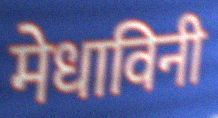
मेधाविनी